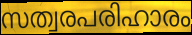
സത്വരപരിഹാരം